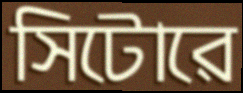
সিটোৱে